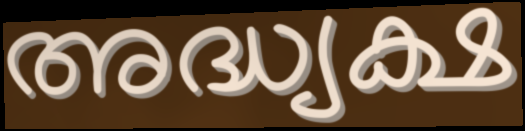
അദ്ധ്യക്ഷ